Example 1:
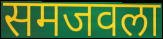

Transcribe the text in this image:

समजवला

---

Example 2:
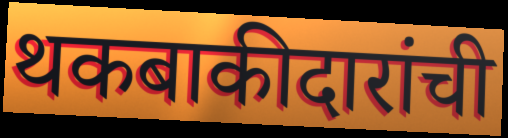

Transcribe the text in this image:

थकबाकीदारांची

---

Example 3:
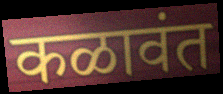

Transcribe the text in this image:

कळावंत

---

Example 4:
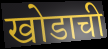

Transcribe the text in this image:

खोडाची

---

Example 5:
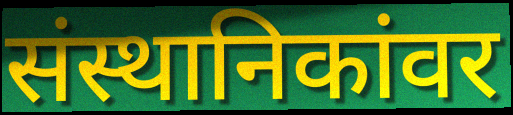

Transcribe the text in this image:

संस्थानिकांवर